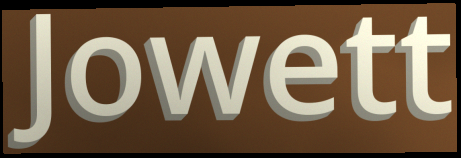
Jowett